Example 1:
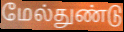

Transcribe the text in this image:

மேல்துண்டு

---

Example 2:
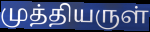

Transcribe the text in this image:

முத்தியருள்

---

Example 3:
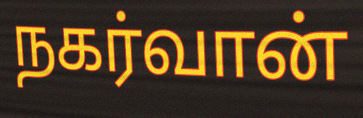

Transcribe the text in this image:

நகர்வான்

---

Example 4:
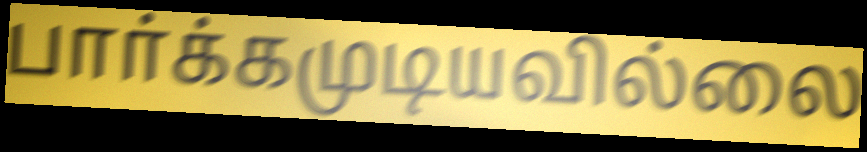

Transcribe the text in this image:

பார்க்கமுடியவில்லை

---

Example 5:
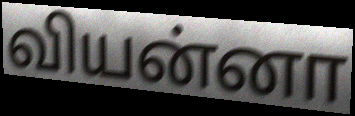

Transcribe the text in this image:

வியன்னா